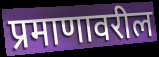
प्रमाणावरील